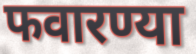
फवारण्या